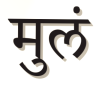
मुलं